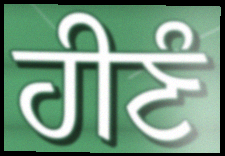
ਹੀਣੰ